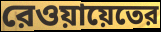
রেওয়ায়েতের